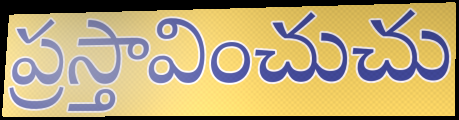
ప్రస్తావించుచు